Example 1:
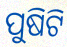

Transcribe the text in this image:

ପୁଷିଟି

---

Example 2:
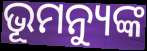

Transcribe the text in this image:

ଭୂମନ୍ୟୁଙ୍କ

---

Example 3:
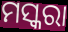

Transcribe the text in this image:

ମସ୍କରା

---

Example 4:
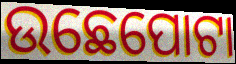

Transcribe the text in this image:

ଉଛେପୋଟା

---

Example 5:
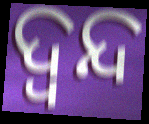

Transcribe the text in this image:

ଦ୍ବନ୍ଦ